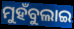
ମୁହଁବୁଲାଇ